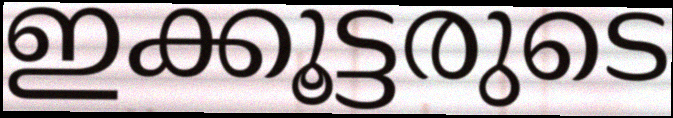
ഇക്കൂട്ടരുടെ